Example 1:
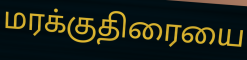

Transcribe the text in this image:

மரக்குதிரையை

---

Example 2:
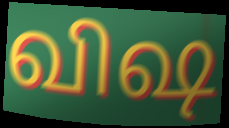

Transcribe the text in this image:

விஷ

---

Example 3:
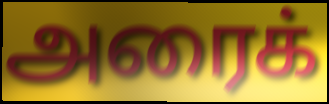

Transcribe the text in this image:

அரைக்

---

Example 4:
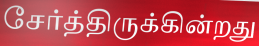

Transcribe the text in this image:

சேர்த்திருக்கின்றது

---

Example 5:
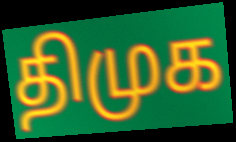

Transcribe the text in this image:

திமுக